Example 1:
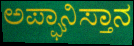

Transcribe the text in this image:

ಅಪ್ಘಾನಿಸ್ತಾನ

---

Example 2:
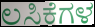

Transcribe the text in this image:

ಲಸಿಕೆಗಳ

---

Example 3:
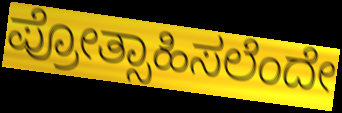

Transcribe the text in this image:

ಪ್ರೋತ್ಸಾಹಿಸಲೆಂದೇ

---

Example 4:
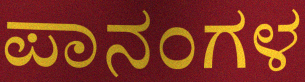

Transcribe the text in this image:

ಪಾನಂಗಳ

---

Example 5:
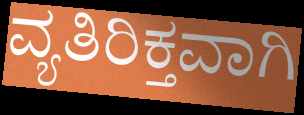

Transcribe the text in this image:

ವ್ಯತಿರಿಕ್ತವಾಗಿ